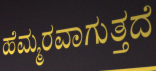
ಹೆಮ್ಮರವಾಗುತ್ತದೆ